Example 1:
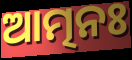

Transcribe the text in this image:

ଆତ୍ମନଃ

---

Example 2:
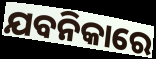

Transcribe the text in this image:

ଯବନିକାରେ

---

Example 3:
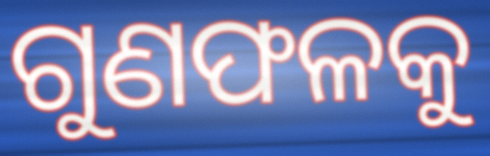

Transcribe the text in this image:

ଗୁଣଫଳକୁ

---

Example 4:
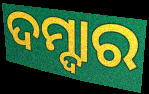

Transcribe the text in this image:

ଦମ୍ଦାର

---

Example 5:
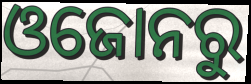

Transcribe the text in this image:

ଓଜୋନରୁ